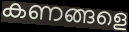
കണങ്ങളെ